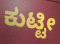
ಕುಟ್ಟೀ